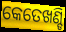
କେତେଖଣ୍ଡି